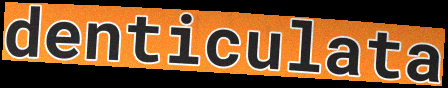
denticulata